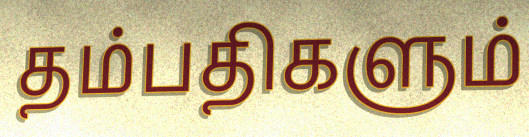
தம்பதிகளும்